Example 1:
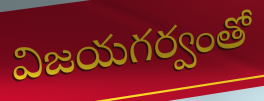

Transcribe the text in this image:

విజయగర్వంతో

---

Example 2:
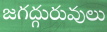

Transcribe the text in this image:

జగద్గురువులు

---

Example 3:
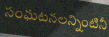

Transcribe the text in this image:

సంఘటనలన్నింటినీ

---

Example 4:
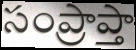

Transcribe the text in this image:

సంప్రాప్తా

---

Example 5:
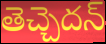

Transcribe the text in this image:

తెచ్చెదన్